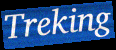
Treking